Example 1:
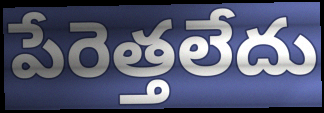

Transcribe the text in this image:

పేరెత్తలేదు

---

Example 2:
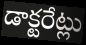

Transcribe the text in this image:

డాక్టరేట్లు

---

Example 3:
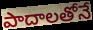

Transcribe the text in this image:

పాదాలతోనే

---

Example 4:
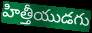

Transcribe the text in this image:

హిత్తీయుడగు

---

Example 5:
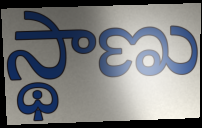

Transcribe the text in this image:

స్థాణు